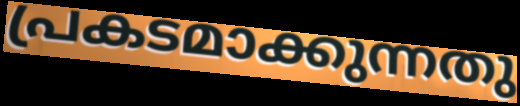
പ്രകടമാക്കുന്നതു